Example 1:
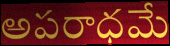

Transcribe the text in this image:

అపరాధమే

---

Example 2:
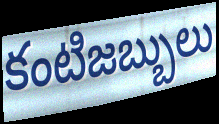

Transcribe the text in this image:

కంటిజబ్బులు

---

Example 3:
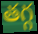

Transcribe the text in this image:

తగ్గ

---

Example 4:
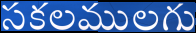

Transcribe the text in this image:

సకలములగు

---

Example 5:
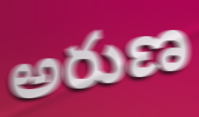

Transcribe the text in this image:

అరుణ